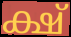
ക്ഷ്